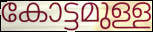
കോട്ടമുള്ള